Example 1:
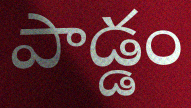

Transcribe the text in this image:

పాడ్డం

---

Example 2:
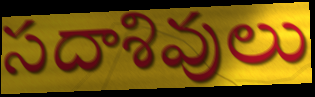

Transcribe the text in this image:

సదాశివులు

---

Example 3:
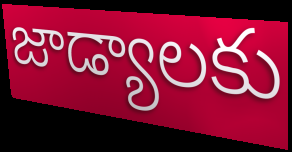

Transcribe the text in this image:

జాడ్యాలకు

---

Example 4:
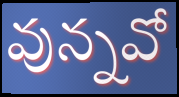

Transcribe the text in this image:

వున్నవో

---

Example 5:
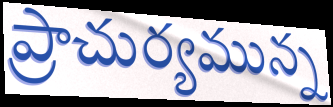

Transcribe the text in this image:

ప్రాచుర్యమున్న